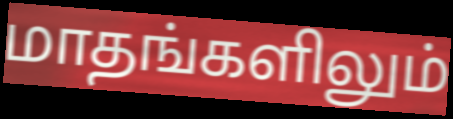
மாதங்களிலும்